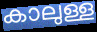
കാലുള്ള